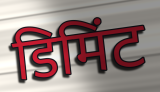
डिमिंट